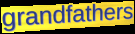
grandfathers